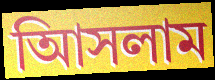
আিসলাম